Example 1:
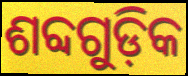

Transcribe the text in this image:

ଶବ୍ଦଗୁଡ଼ିକ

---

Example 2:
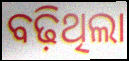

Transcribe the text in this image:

ବଢ଼ିଥିଲା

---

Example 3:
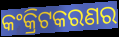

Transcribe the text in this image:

କଂକ୍ରିଟକରଣର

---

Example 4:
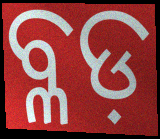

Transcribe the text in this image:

ବ୍ଳଡ଼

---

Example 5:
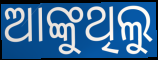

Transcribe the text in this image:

ଆଙ୍କୁଥିଲୁ